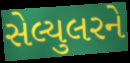
સેલ્યુલરને